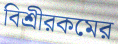
বিশ্রীরকমের